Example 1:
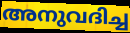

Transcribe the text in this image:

അനുവദിച്ച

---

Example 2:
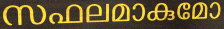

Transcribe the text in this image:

സഫലമാകുമോ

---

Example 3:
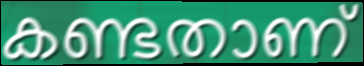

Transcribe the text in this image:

കണ്ടതാണ്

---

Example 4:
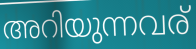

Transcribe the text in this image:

അറിയുന്നവര്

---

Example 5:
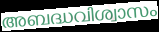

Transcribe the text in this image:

അബദ്ധവിശ്വാസം